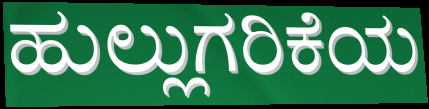
ಹುಲ್ಲುಗರಿಕೆಯ